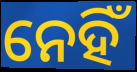
ନେହିଁ